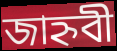
জাহ্নবী